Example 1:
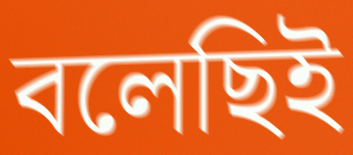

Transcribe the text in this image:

বলেছিই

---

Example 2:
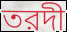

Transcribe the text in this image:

তরদী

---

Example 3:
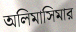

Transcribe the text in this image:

অলিমাসিমার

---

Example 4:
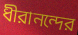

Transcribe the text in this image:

ধীরানন্দের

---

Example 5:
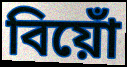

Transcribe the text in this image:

বিয়োঁ